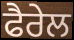
ਫੈਰੇਲ